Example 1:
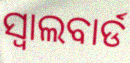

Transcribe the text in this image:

ସ୍ୱାଲବାର୍ଡ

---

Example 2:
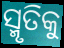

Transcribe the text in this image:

ସ୍ମୃତିକୁ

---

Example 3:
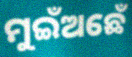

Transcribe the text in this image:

ମୁଇଁଅଛେଁ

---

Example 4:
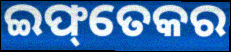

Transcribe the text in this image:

ଇଫ୍‌ତେକର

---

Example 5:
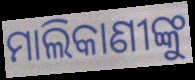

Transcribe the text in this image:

ମାଲିକାଣୀଙ୍କୁ